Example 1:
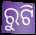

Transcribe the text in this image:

ରୁଟି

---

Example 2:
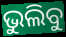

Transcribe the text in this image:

ଭୁଲିବୁ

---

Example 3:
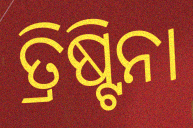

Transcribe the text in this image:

ତ୍ରିଷ୍ଟିନା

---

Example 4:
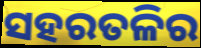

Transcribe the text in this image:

ସହରତଳିର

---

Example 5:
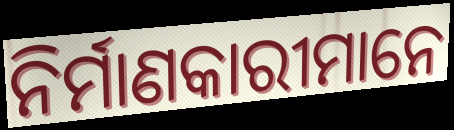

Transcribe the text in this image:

ନିର୍ମାଣକାରୀମାନେ